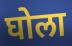
घोला